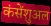
कंसेंशुअल